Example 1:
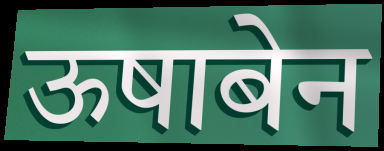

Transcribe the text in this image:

ऊषाबेन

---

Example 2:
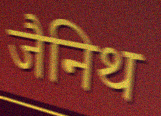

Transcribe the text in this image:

जैनिथ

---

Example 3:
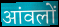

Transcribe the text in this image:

आंवलों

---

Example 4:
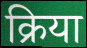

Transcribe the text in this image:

क्रिया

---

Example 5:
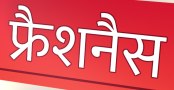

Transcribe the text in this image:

फ्रैशनैस